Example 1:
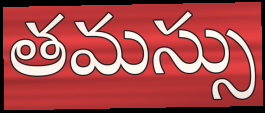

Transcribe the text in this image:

తమస్సు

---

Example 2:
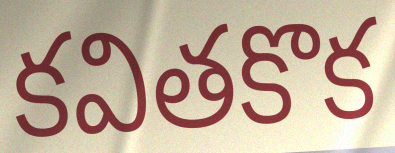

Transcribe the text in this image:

కవితకొక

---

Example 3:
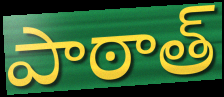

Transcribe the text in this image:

పాఠాత్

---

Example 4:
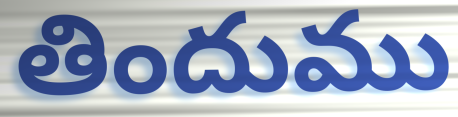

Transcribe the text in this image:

తిందుము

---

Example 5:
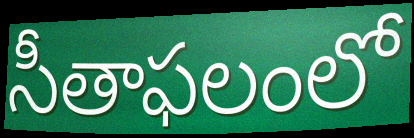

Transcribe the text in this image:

సీతాఫలంలో